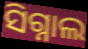
ସିଗ୍ନାଲ